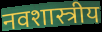
नवशास्त्रीय